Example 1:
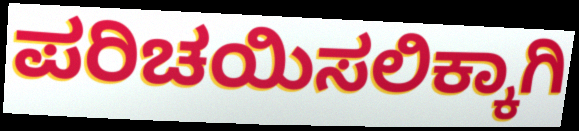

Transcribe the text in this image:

ಪರಿಚಯಿಸಲಿಕ್ಕಾಗಿ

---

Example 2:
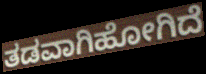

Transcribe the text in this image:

ತಡವಾಗಿಹೋಗಿದೆ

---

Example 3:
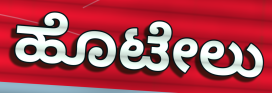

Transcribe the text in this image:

ಹೊಟೇಲು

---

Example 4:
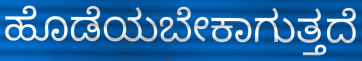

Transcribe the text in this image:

ಹೊಡೆಯಬೇಕಾಗುತ್ತದೆ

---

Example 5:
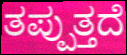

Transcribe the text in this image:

ತಪ್ಪುತ್ತದೆ